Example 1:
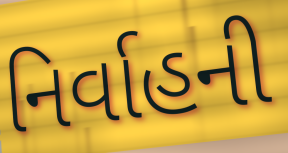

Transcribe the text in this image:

નિર્વાહની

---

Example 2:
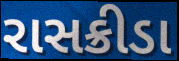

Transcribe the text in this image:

રાસક્રીડા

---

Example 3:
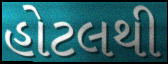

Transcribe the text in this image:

હોટલથી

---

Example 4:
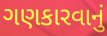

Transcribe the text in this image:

ગણકારવાનું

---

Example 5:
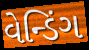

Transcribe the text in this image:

વેન્ડિંગ